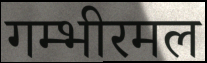
गम्भीरमल